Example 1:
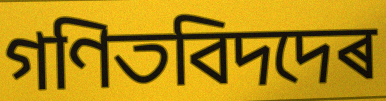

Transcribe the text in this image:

গণিতবিদদেৰ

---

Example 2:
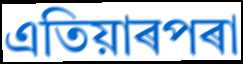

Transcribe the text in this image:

এতিয়াৰপৰা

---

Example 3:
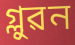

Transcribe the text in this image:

গ্লুৱন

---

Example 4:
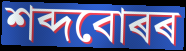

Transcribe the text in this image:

শব্দবোৰৰ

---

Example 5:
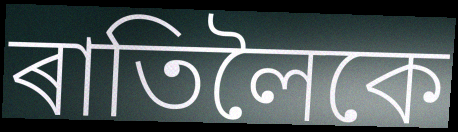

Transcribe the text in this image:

ৰাতিলৈকে